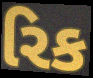
રિક